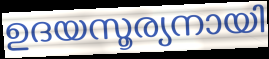
ഉദയസൂര്യനായി